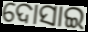
ଦୋସାଇ